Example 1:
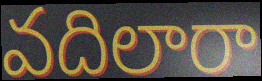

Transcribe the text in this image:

వదిలారా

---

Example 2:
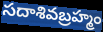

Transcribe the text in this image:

సదాశివబ్రహ్మం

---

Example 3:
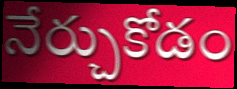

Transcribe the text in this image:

నేర్చుకోడం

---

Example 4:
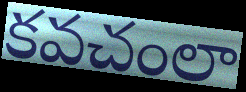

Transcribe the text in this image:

కవచంలా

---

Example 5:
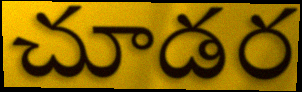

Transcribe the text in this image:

చూడర